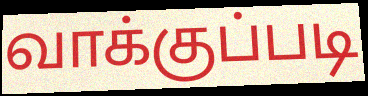
வாக்குப்படி